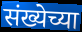
संख्येच्या